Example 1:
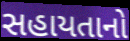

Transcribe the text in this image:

સહાયતાનો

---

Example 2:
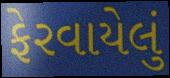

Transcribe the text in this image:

ફેરવાયેલું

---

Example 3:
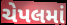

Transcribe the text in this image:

ચેપલમાં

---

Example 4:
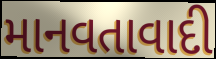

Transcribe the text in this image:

માનવતાવાદી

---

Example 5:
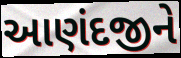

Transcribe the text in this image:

આણંદજીને